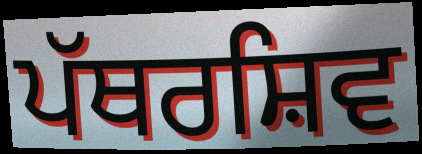
ਪੱਥਰਸ਼ਿਵ